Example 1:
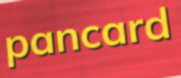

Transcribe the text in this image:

pancard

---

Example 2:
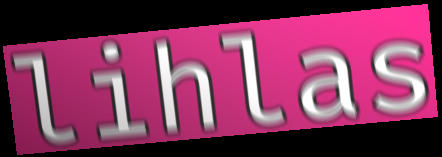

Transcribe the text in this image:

lihlas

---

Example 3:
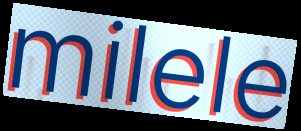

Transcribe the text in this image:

milele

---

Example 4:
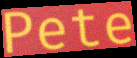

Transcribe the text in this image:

Pete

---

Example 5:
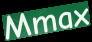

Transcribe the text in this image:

Mmax